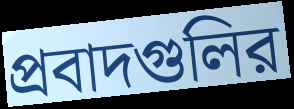
প্রবাদগুলির